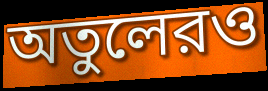
অতুলেরও